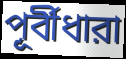
পূর্বীধারা